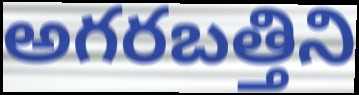
అగరబత్తిని